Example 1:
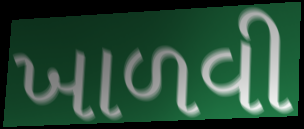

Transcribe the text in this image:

ખાળવી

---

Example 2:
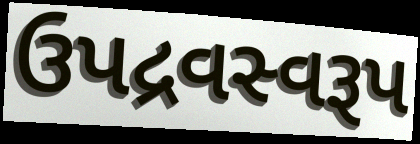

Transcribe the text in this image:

ઉપદ્રવસ્વરૂપ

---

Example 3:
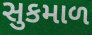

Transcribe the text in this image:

સુકમાળ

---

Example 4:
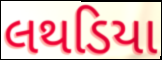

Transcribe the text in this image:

લથડિયા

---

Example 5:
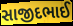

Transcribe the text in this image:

સાજીદભાઈ